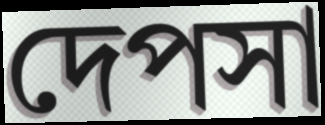
দেপসা